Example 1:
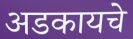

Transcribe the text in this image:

अडकायचे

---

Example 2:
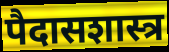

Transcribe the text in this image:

पैदासशास्त्र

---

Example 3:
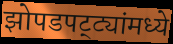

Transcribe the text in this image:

झोपडपट्ट्यांमध्ये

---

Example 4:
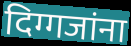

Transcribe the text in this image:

दिग्गजांना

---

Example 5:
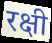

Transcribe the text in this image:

रक्षी